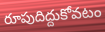
రూపుదిద్దుకోవటం